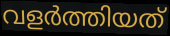
വളർത്തിയത്